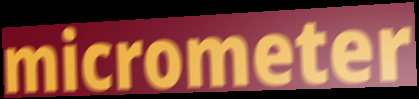
micrometer